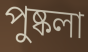
পুষ্কলা